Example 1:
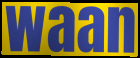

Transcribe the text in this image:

waan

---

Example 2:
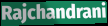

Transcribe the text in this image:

Rajchandrani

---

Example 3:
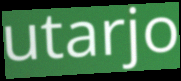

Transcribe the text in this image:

utarjo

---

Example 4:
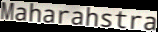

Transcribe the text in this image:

Maharahstra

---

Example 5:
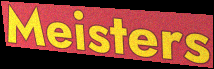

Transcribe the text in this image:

Meisters